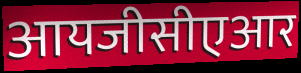
आयजीसीएआर